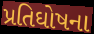
પ્રતિઘોષના